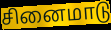
சினைமாடு